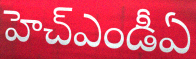
హెచ్ఎండీఏ